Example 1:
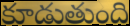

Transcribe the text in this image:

కూడుతుంది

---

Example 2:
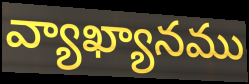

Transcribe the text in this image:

వ్యాఖ్యానము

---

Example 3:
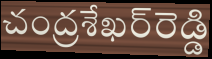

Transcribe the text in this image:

చంద్రశేఖర్‌రెడ్డి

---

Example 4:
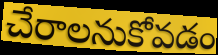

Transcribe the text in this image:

చేరాలనుకోవడం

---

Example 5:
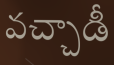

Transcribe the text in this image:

వచ్చాడీ